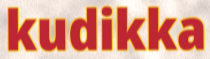
kudikka